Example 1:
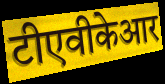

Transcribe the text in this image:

टीएवीकेआर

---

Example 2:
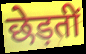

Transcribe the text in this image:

छेड़तीं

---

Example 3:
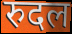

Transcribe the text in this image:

रुदल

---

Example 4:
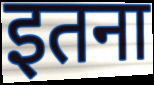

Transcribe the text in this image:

इतना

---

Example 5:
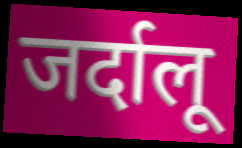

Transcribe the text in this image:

जर्दालू